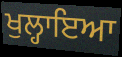
ਖੁਲ੍ਹਾਇਆ